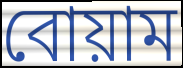
বোয়াম